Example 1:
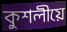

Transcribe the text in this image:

কুশলীয়ে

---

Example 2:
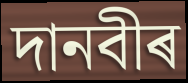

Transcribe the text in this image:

দানবীৰ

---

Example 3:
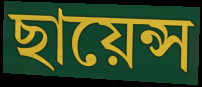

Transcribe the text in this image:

ছায়েন্স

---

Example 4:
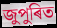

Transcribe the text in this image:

জুপুৰিত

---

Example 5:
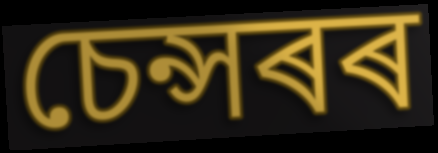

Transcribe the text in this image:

চেন্সৰৰ